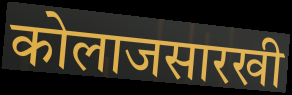
कोलाजसारखी